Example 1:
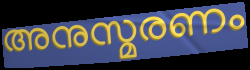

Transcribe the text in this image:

അനുസ്മരണം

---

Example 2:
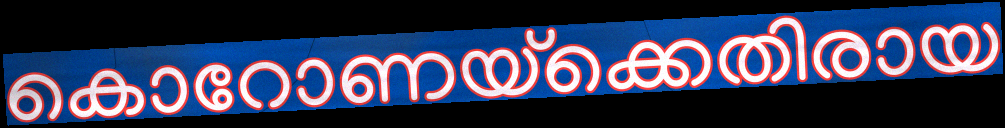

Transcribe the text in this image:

കൊറോണയ്‌ക്കെതിരായ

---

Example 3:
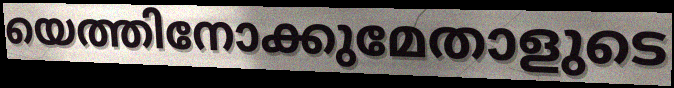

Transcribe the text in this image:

യെത്തിനോക്കുമേതാളുടെ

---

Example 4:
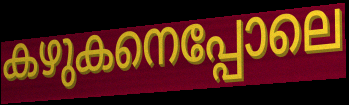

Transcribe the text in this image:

കഴുകനെപ്പോലെ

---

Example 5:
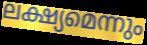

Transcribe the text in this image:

ലക്ഷ്യമെന്നും